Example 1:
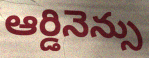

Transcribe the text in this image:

ఆర్డినెన్సు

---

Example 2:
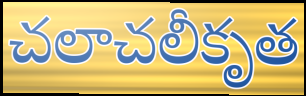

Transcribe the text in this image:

చలాచలీకృత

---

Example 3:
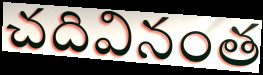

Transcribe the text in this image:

చదివినంత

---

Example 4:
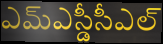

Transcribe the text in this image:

ఎమ్ఎస్డీసీఎల్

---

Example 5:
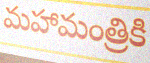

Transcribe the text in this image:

మహామంత్రికి